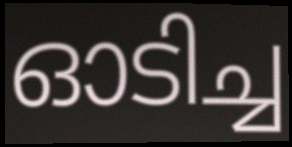
ഓടിച്ച